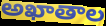
అఖాతాల